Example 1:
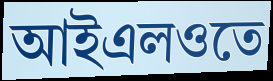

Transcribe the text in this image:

আইএলওতে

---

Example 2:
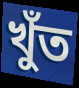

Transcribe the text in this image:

খুঁত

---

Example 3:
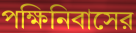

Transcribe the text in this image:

পক্ষিনিবাসের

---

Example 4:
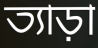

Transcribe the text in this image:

ত্যাড়া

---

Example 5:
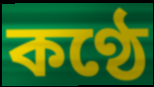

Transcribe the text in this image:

কণ্ঠে